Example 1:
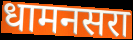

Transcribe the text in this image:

धामनसरा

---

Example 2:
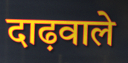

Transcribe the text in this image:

दाढ़वाले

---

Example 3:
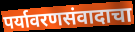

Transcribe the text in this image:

पर्यावरणसंवादाचा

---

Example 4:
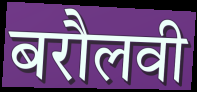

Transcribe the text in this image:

बरौलवी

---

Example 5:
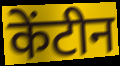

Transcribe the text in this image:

केंटीन